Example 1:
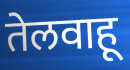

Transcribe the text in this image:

तेलवाहू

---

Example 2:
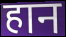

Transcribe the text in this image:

हान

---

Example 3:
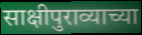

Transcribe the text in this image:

साक्षीपुराव्याच्या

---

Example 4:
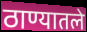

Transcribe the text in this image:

ठाण्यातले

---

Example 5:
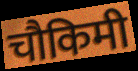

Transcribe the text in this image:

चौकिमी